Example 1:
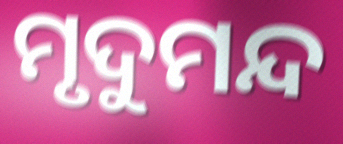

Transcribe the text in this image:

ମୃଦୁମନ୍ଦ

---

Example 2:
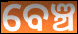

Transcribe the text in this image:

ବେଞ୍ଚ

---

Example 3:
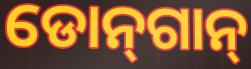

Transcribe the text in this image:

ଡୋନ୍‌ଗାନ୍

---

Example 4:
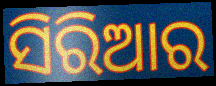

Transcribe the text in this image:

ସିରିଆର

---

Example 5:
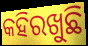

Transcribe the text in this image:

କହିରଖୁଛି